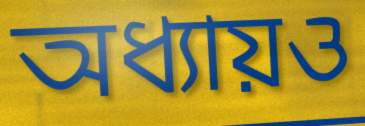
অধ্যায়ও